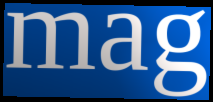
mag